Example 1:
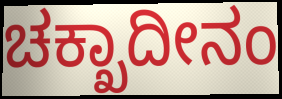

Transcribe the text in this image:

ಚಕ್ಖಾದೀನಂ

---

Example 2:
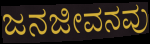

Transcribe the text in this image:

ಜನಜೀವನವು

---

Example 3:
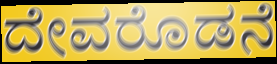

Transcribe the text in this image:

ದೇವರೊಡನೆ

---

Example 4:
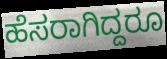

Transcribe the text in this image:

ಹೆಸರಾಗಿದ್ದರೂ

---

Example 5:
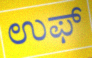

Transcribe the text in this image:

ಉಫ್